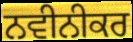
ਨਵੀਨੀਕਰ